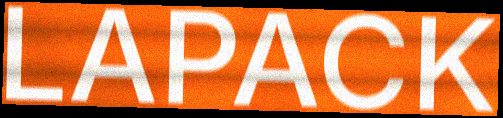
LAPACK